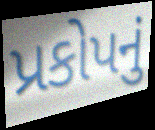
પ્રકોપનું